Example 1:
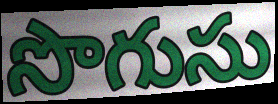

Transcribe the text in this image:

సొగుసు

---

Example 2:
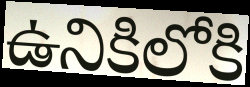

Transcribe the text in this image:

ఉనికిలోకి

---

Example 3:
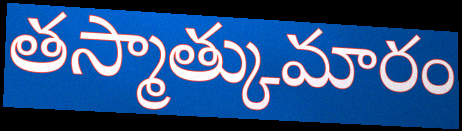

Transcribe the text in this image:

తస్మాత్కుమారం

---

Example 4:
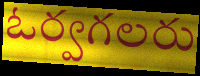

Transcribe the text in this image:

ఓర్వగలరు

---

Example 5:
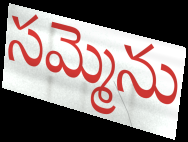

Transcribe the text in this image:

సమ్మెను